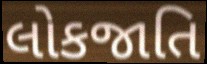
લોકજાતિ